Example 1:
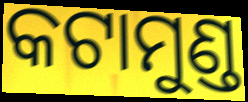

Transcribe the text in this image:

କଟାମୁଣ୍ଡ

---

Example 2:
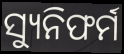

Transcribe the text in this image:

ସ୍ୟୁନିଫର୍ମ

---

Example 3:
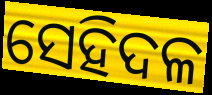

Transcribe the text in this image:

ସେହିଦଳ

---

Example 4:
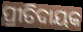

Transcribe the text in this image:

ପ୍ରୀତିଦାୟକ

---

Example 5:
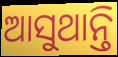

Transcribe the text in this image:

ଆସୁଥାନ୍ତି